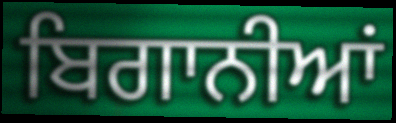
ਬਿਗਾਨੀਆਂ